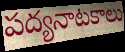
పద్యనాటకాలు